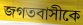
জগতবাসীকে